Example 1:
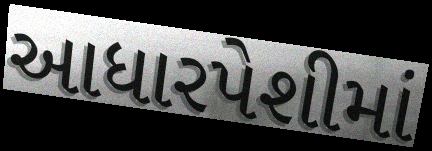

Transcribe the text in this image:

આધારપેશીમાં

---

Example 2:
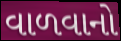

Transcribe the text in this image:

વાળવાનો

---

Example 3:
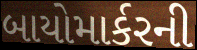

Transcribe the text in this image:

બાયોમાર્કરની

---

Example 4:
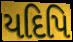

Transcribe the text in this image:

યદિપિ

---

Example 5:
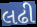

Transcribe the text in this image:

લઢી